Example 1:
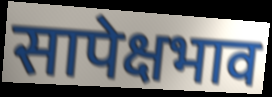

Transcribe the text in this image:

सापेक्षभाव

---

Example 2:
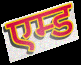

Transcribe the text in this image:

एम्ड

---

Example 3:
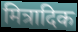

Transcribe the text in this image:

मित्रादिक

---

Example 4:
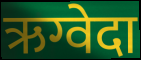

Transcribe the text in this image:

ऋग्वेदा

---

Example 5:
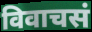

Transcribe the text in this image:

विवाचसं